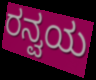
ರನ್ವಯ